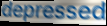
depressed